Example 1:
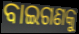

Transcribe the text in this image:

ବାଇଗଣକୁ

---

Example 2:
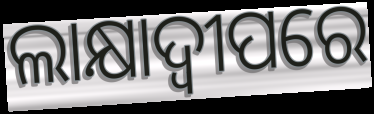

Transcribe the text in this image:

ଲାକ୍ଷାଦ୍ୱୀପରେ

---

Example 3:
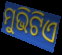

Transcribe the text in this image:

ମୁଭିଟିଏ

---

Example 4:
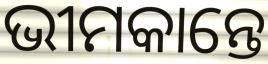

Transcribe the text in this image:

ଭୀମକାନ୍ତେ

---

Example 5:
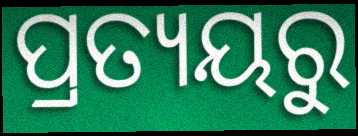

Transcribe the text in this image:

ପ୍ରତ୍ୟୟରୁ